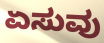
ಏಸುವು